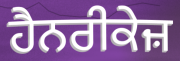
ਹੈਨਰੀਕੇਜ਼